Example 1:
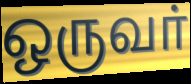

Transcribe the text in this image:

ஒருவர்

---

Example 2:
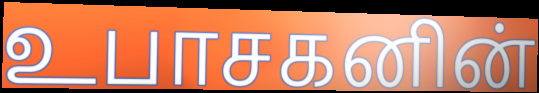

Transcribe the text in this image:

உபாசகனின்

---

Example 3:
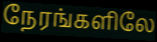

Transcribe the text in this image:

நேரங்களிலே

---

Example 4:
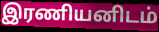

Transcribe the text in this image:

இரணியனிடம்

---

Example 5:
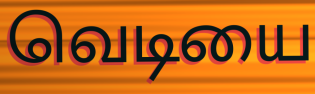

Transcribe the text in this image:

வெடியை